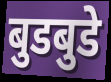
बुडबुडे